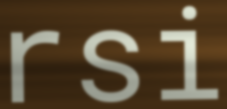
rsi